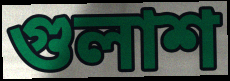
গুলাশ